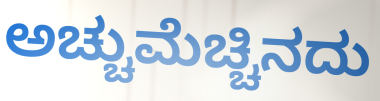
ಅಚ್ಚುಮೆಚ್ಚಿನದು